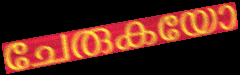
ചേരുകയോ